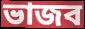
ভাজব